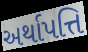
અર્થાપત્તિ